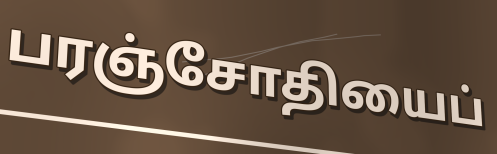
பரஞ்சோதியைப்